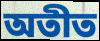
অতীত